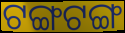
ଟଙ୍ଗଟଙ୍ଗ